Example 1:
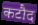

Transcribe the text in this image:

कटौद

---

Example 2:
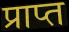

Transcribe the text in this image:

प्राप्त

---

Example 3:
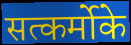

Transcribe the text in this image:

सत्कर्मोके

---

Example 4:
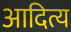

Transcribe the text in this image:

आदित्य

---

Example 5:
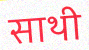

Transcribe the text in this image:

साथी